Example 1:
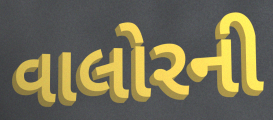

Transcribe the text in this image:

વાલોરની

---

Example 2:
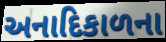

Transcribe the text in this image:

અનાદિકાળના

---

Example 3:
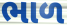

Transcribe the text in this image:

ભાળ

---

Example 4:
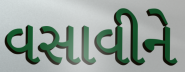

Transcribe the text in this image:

વસાવીને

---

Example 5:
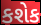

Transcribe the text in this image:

કશેક